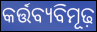
କର୍ତ୍ତବ୍ୟବିମୂଢ଼